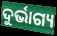
ଦୁର୍ଭାଗ୍ୟ